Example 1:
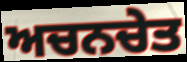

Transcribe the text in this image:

ਅਚਨਚੇਤ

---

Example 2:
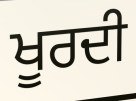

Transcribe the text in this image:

ਖੂਰਦੀ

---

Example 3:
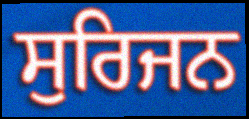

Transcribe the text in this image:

ਸੁਰਿਜਨ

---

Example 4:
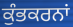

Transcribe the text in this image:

ਕੁੰਭਕਰਨਾਂ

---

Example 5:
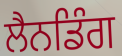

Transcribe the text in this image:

ਲੈਨਡਿੰਗ